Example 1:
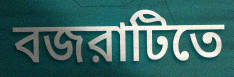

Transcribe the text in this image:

বজরাটিতে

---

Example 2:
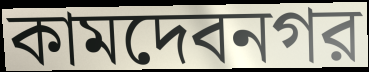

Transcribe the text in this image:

কামদেবনগর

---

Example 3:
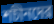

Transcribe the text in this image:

শচীনদের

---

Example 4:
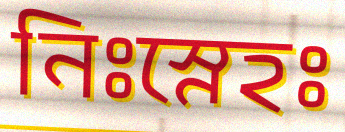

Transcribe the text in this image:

নিঃস্নেহঃ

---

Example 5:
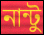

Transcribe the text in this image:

নান্টু